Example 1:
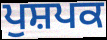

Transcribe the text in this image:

ਪੁਸ਼ਪਕ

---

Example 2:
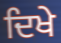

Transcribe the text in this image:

ਦਿਖੇ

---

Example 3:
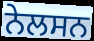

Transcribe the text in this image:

ਨੇਲਸਨ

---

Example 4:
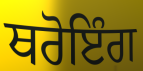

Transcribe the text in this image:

ਥਰੋਇੰਗ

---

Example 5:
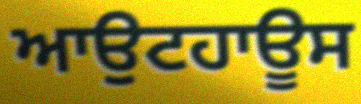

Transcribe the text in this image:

ਆਉਟਹਾਊਸ